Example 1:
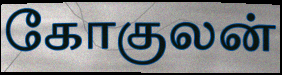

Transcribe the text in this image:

கோகுலன்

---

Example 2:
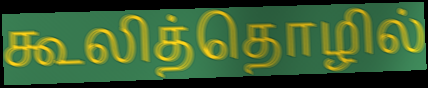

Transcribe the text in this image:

கூலித்தொழில்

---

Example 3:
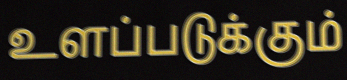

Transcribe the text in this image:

உளப்படுக்கும்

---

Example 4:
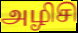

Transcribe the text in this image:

அழிசி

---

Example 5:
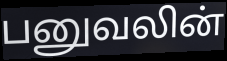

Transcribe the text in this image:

பனுவலின்